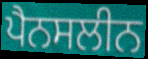
ਪੈਨਸਲੀਨ